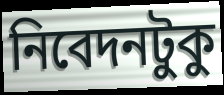
নিবেদনটুকু